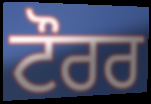
ਟੌਰਰ